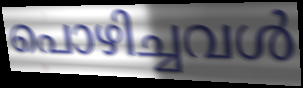
പൊഴിച്ചവൾ